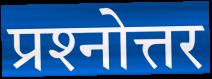
प्रश्‍नोत्तर